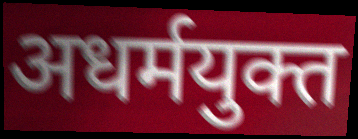
अधर्मयुक्त